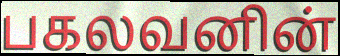
பகலவனின்